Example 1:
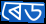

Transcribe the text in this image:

ৰেড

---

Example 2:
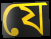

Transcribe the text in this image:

যে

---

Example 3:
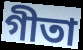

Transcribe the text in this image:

গীতা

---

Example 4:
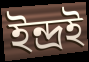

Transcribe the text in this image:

ইন্দ্ৰই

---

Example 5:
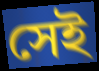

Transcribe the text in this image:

সেই